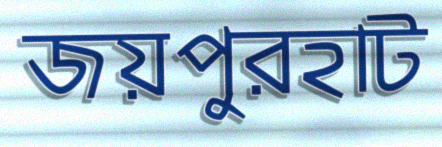
জয়পুরহাট